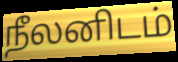
நீலனிடம்